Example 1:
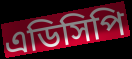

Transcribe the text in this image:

এডিসিপি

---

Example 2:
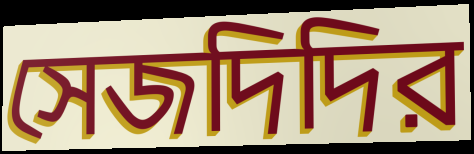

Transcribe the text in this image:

সেজদিদির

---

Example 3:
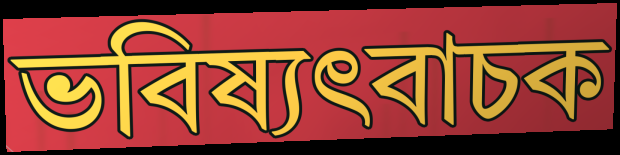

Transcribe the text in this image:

ভবিষ্যৎবাচক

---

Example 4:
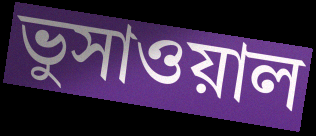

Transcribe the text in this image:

ভুসাওয়াল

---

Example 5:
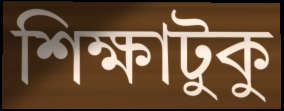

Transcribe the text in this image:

শিক্ষাটুকু